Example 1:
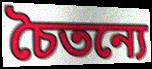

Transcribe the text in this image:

চৈতন্যে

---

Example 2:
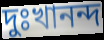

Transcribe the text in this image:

দুঃখানন্দ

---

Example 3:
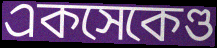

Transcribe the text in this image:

একসেকেণ্ড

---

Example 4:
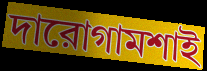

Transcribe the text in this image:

দারোগামশাই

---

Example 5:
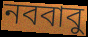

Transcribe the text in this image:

নববাবু